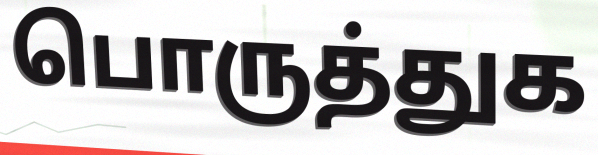
பொருத்துக